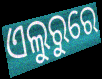
ଏଲୁରୁରେ